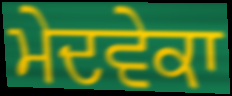
ਮੇਦਵੇਕਾ